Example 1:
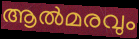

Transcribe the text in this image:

ആൽമരവും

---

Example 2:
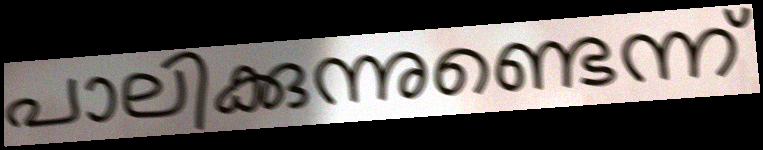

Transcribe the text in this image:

പാലിക്കുന്നുണ്ടെന്ന്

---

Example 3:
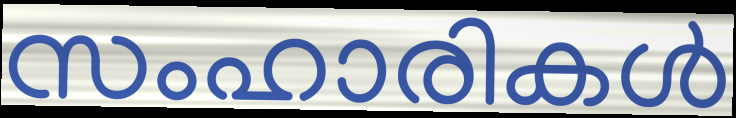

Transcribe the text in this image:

സംഹാരികൾ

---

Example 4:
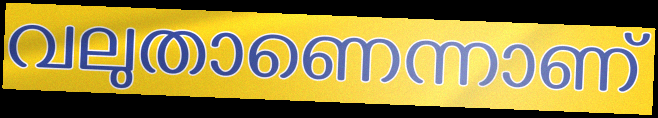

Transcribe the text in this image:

വലുതാണെന്നാണ്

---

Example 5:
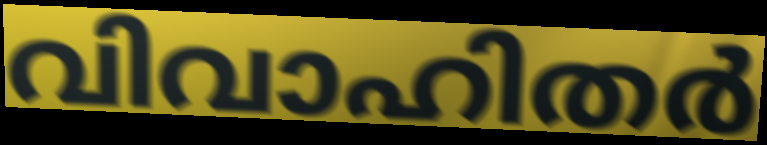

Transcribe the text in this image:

വിവാഹിതർ